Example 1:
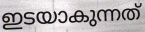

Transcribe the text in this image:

ഇടയാകുന്നത്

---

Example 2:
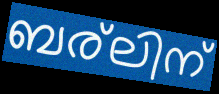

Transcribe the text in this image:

ബര്ലിന്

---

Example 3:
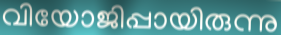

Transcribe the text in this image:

വിയോജിപ്പായിരുന്നു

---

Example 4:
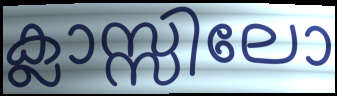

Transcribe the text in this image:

ക്ലാസ്സിലോ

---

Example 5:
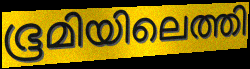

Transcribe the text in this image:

ഭൂമിയിലെത്തി